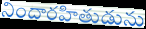
నిందారహితుడును